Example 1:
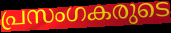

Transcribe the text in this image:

പ്രസംഗകരുടെ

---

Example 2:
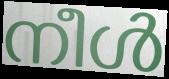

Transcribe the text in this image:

നീൾ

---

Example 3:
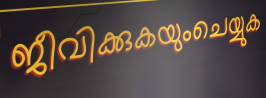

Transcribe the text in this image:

ജീവിക്കുകയുംചെയ്യുക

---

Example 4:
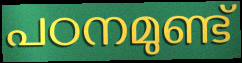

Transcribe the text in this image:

പഠനമുണ്ട്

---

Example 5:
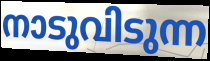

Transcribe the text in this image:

നാടുവിടുന്ന